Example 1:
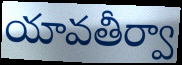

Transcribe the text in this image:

యావతీర్వా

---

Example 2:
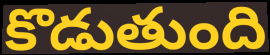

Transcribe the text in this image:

కొడుతుంది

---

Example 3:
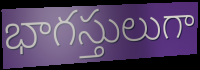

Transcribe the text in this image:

భాగస్తులుగా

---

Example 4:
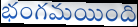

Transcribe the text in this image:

భంగమయింది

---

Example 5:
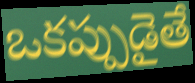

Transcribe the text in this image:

ఒకప్పుడైతే